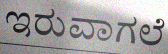
ಇರುವಾಗಲೆ